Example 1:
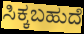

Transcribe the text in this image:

ಸಿಕ್ಕಬಹುದೆ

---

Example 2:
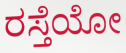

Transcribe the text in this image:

ರಸ್ತೆಯೋ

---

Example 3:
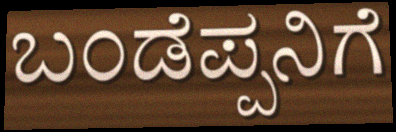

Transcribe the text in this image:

ಬಂಡೆಪ್ಪನಿಗೆ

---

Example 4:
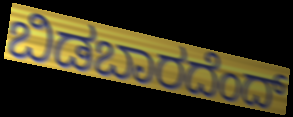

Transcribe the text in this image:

ಬಿಡಬಾರದೆಂದ್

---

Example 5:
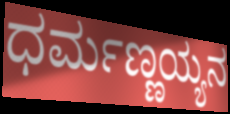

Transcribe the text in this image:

ಧರ್ಮಣ್ಣಯ್ಯನ